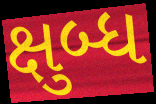
ક્ષુબ્ધ